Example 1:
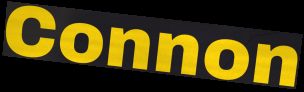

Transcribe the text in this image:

Connon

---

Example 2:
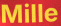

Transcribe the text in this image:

Mille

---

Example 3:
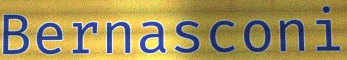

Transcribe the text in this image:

Bernasconi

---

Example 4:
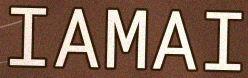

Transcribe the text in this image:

IAMAI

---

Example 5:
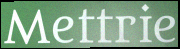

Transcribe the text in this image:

Mettrie